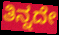
ತಿನ್ನದೇ